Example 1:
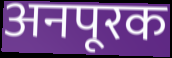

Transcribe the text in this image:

अनपूरक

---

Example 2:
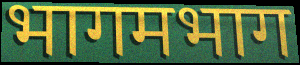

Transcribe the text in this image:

भागमभाग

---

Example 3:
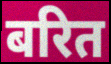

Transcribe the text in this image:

बरित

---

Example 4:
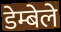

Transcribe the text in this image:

डेम्बेले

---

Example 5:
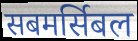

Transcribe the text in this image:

सबमर्सिबल